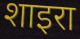
शाइरा